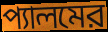
প্যালমের